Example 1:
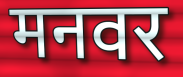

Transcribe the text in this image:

मनवर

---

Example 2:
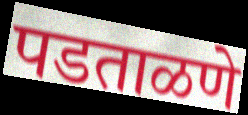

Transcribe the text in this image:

पडताळणे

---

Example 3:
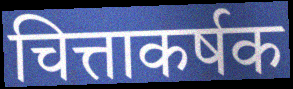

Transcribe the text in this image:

चित्ताकर्षक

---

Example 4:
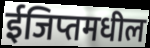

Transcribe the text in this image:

ईजिप्तमधील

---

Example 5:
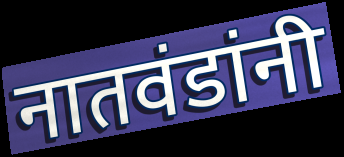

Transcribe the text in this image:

नातवंडांनी